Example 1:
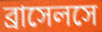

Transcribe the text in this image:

ব্রাসেলসে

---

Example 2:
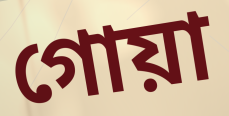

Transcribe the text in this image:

গোয়া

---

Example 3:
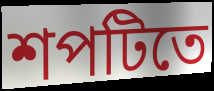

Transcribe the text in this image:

শপটিতে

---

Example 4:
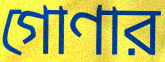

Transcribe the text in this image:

গোণার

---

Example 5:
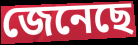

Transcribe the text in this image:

জেনেছে